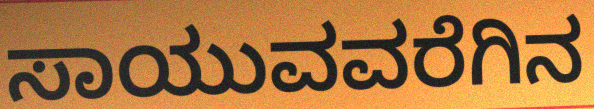
ಸಾಯುವವರೆಗಿನ